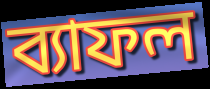
ব্যাফল